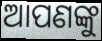
ଆପଣଙ୍କୁ